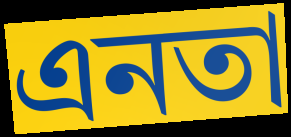
এনতা